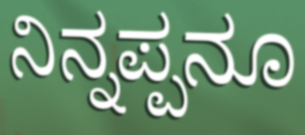
ನಿನ್ನಪ್ಪನೂ